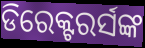
ଡିରେକ୍ଟରର୍ସଙ୍କ